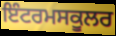
ਇੰਟਰਮਸਕੂਲਰ